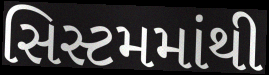
સિસ્ટમમાંથી